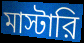
মাস্টারি